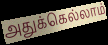
அதுக்கெல்லாம்